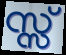
സ്സ്